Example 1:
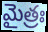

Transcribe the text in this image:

మైత్రః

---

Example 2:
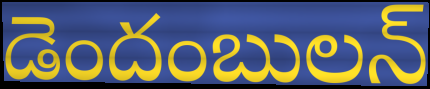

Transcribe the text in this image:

డెందంబులన్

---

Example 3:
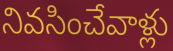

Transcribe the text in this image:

నివసించేవాళ్లు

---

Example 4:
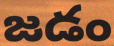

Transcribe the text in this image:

జడం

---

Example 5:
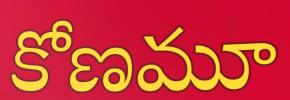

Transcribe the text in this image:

కోణమూ